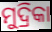
ମୁଦ୍ରିକା